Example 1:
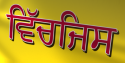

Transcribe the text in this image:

ਵਿੱਚਜਿਸ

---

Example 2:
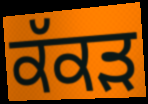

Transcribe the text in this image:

ਕੱਕਡ਼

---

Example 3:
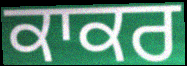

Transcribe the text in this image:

ਕਾਕਰ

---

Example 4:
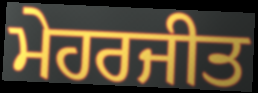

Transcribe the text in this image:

ਮੇਹਰਜੀਤ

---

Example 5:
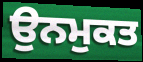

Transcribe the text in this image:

ਉਨਮੁਕਤ